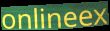
onlineex